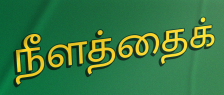
நீளத்தைக்